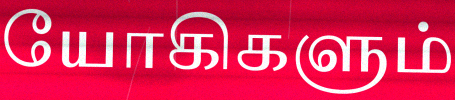
யோகிகளும்